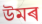
উমৰ